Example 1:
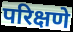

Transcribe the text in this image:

परिक्षणे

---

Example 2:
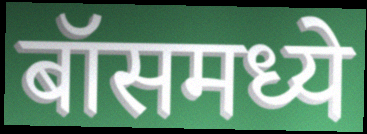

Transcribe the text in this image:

बॉसमध्ये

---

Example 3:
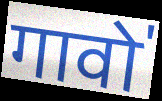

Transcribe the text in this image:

गावो॑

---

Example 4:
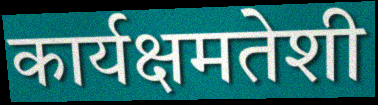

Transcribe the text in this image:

कार्यक्षमतेशी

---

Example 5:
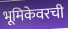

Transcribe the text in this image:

भूमिकेवरची